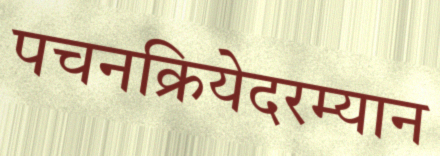
पचनक्रियेदरम्यान